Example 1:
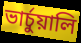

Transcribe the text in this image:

ভার্চুয়ালি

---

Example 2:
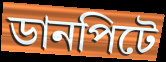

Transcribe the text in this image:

ডানপিটে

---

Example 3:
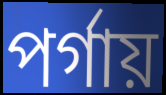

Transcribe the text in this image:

পর্গায়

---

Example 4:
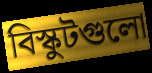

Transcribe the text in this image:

বিস্কুটগুলো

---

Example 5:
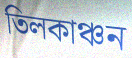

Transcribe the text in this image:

তিলকাঞ্চন